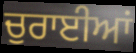
ਚੁਰਾਈਆਂ